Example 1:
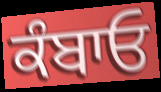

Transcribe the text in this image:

ਕੰਬਾਓ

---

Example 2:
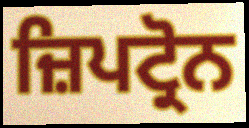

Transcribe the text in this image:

ਜ਼ਿਪਟ੍ਰੋਨ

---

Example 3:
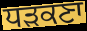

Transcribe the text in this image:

ਧੜਕਣਾ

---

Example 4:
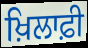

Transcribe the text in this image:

ਖ਼ਿਲਾਫ਼ੀ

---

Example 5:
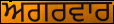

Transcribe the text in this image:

ਅਗਰਵਾਰ